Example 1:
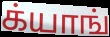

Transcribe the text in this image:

க்யாங்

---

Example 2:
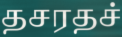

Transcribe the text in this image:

தசரதச்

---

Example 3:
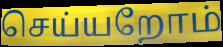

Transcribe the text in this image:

செய்யறோம்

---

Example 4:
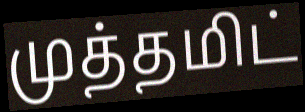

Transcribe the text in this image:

முத்தமிட்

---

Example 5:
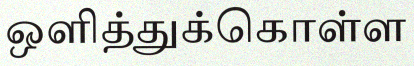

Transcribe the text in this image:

ஒளித்துக்கொள்ள